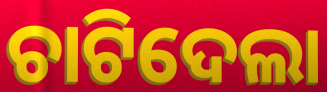
ଚାଟିଦେଲା